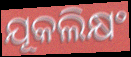
ଯୂକଲିକ୍ଷଂ